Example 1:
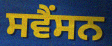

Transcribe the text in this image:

ਸਵੈਂਸਨ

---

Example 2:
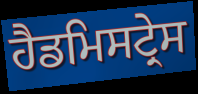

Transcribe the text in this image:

ਹੈਡਮਿਸਟ੍ਰੇਸ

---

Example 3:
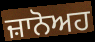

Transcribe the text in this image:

ਜ਼ਾਨੋਅਹ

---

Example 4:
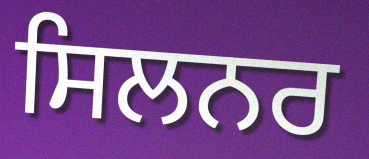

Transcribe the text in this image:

ਸਿਲਨਰ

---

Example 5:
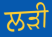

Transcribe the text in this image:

ਲਡ਼ੀ